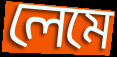
লেমে